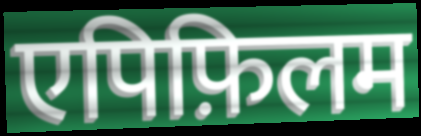
एपिफ़िलम